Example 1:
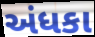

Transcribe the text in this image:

અંધકા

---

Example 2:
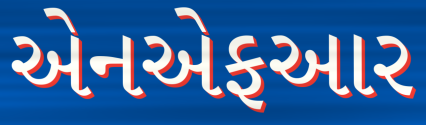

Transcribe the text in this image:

એનએફઆર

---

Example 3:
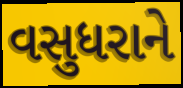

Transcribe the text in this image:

વસુધરાને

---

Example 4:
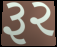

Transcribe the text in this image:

રૂર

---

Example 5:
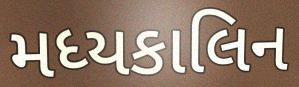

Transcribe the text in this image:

મધ્યકાલિન